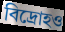
বিদ্রোহও